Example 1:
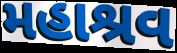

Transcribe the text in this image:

મહાશ્રવ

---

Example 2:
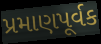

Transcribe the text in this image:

પ્રમાણપૂર્વક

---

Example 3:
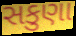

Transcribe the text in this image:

સકુણા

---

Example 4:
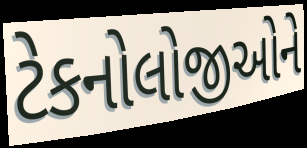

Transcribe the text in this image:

ટેકનોલોજીઓને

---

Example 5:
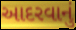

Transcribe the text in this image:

આદરવાનું